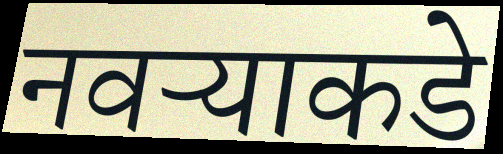
नवऱ्याकडे